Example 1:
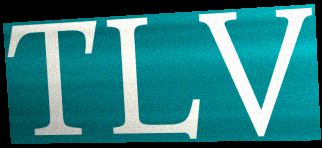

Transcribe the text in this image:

TLV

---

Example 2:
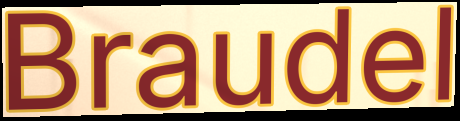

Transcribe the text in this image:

Braudel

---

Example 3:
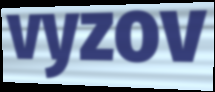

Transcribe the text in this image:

vyzov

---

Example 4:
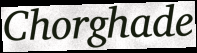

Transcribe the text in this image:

Chorghade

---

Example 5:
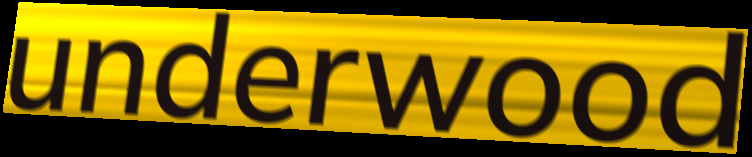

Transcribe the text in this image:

underwood